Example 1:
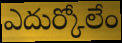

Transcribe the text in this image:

ఎదుర్కోలేం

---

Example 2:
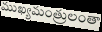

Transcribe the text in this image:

ముఖ్యమంత్రులంతా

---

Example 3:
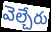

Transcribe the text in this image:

వెల్చేరు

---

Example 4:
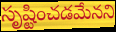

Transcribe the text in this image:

సృష్టించడమేనని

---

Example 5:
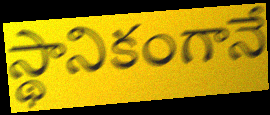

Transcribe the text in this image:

స్థానికంగానే